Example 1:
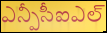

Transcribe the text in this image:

ఎన్పీసీఐఎల్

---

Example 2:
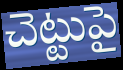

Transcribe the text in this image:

చెట్టుపై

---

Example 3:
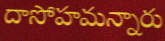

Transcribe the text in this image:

దాసోహమన్నారు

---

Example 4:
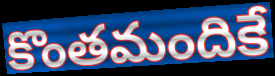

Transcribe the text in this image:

కొంతమందికే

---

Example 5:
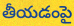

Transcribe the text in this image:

తీయడంపై